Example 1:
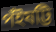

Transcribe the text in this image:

পঁইষট্টি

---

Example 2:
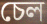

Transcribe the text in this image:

চেল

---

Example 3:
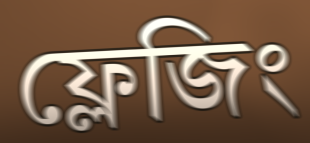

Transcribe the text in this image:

ফ্লেজিং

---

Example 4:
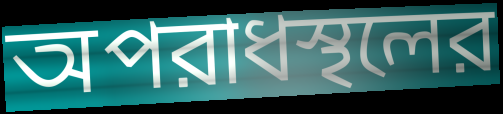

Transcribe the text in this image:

অপরাধস্থলের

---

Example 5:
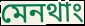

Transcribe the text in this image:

মেনথাং